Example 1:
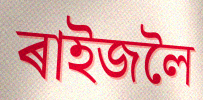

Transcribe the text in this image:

ৰাইজলৈ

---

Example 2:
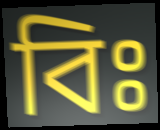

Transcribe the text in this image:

বিঃ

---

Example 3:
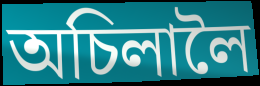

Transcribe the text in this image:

অচিলালৈ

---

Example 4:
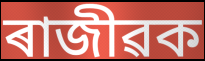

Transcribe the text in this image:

ৰাজীৱক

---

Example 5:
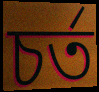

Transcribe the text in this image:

চৰ্ত